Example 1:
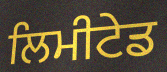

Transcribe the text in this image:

ਲਿਮੀਟੇਡ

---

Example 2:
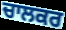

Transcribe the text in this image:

ਚਾਲਕਰ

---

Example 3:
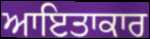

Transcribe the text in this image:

ਆਇਤਾਕਾਰ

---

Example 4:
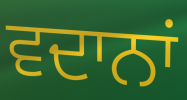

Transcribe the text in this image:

ਵਦਾਨਾਂ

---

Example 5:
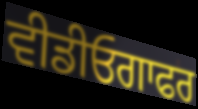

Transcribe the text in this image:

ਵੀਡੀਓਗਾਫਰ